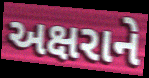
અક્ષરાને